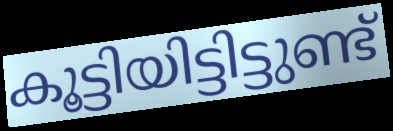
കൂട്ടിയിട്ടിട്ടുണ്ട്